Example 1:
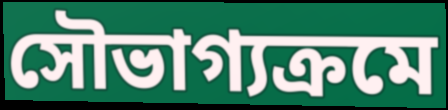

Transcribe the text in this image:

সৌভাগ্যক্ৰমে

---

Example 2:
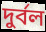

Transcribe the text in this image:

দুৰ্বল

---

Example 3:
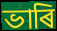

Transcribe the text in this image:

ভাৰি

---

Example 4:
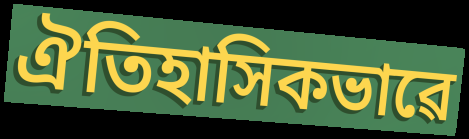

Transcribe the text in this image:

ঐতিহাসিকভাৱে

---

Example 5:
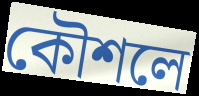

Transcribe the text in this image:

কৌশলে